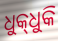
ଧୁକ୍‌ଧୁକି